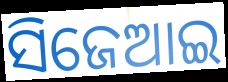
ସିଜେଆଇ